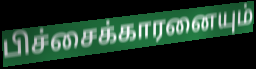
பிச்சைக்காரனையும்